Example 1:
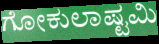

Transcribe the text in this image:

ಗೋಕುಲಾಷ್ಟಮಿ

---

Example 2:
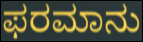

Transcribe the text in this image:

ಫರಮಾನು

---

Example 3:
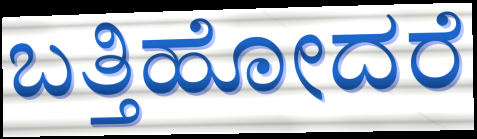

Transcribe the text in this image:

ಬತ್ತಿಹೋದರೆ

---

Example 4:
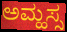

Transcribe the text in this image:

ಅಮ್ಹಸ್ಸ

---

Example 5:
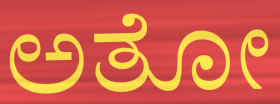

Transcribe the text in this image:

ಅತೋ